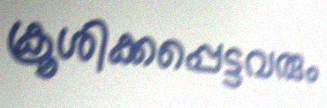
ക്രൂശിക്കപ്പെട്ടവരും